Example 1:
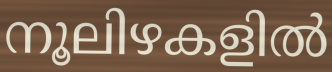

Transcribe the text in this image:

നൂലിഴകളിൽ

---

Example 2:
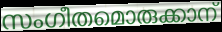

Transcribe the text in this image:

സംഗീതമൊരുക്കാന്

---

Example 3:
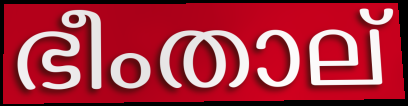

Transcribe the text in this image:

ഭീംതാല്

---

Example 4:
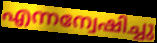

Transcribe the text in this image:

എന്നന്വേഷിച്ചു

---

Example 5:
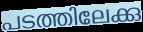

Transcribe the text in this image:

പടത്തിലേക്കു